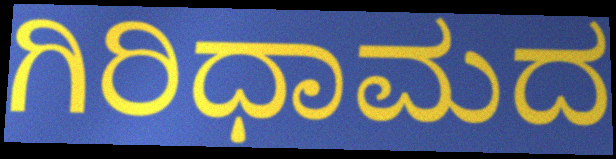
ಗಿರಿಧಾಮದ